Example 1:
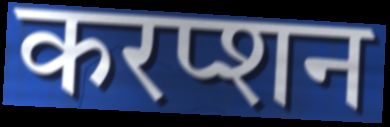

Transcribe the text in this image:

करप्शन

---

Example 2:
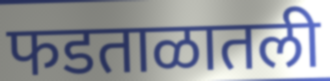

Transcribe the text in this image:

फडताळातली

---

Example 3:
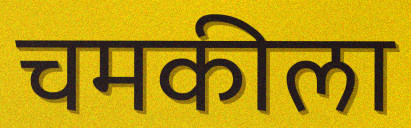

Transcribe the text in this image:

चमकीला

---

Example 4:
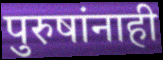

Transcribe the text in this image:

पुरुषांनाही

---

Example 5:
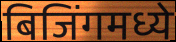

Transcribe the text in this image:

बिजिंगमध्ये